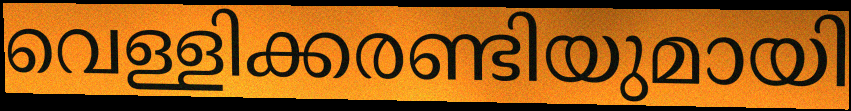
വെള്ളിക്കരണ്ടിയുമായി